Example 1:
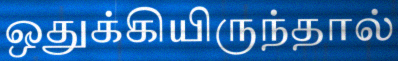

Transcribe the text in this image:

ஒதுக்கியிருந்தால்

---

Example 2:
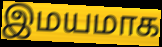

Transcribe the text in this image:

இமயமாக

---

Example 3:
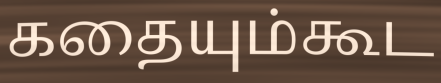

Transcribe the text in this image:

கதையும்கூட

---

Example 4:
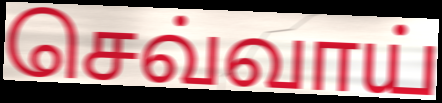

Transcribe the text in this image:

செவ்வாய்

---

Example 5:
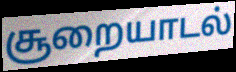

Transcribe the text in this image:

சூறையாடல்